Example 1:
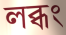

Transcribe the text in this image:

লব্ধং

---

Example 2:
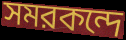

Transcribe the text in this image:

সমরকন্দে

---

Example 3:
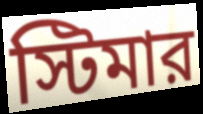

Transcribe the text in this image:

স্টিমার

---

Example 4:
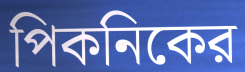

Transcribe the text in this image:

পিকনিকের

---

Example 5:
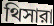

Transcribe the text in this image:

থিসারা